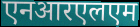
एनआरएलएम